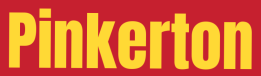
Pinkerton